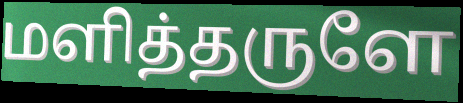
மளித்தருளே